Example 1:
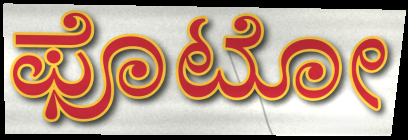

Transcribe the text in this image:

ಫೊಟೋ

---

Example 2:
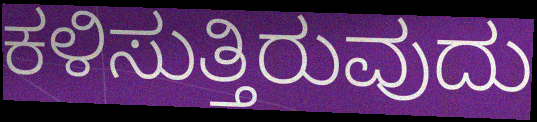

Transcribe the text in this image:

ಕಳಿಸುತ್ತಿರುವುದು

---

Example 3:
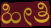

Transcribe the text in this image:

ಹೀತಿ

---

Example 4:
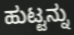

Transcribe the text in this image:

ಹುಟ್ಟನ್ನು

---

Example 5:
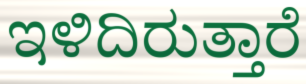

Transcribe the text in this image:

ಇಳಿದಿರುತ್ತಾರೆ